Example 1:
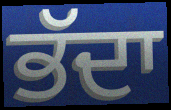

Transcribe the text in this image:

ਭੱਦਾ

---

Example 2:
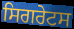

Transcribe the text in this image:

ਸਿਗਰੇਟਸ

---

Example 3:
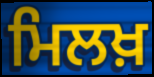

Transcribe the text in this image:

ਮਿਲਖ਼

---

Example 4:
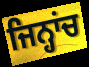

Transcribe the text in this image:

ਜਿਨ੍ਹਾਂਚ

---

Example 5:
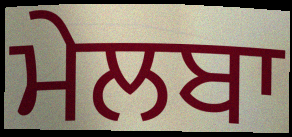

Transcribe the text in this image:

ਮੇਲਬਾ